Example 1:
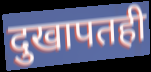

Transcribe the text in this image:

दुखापतही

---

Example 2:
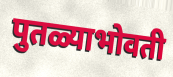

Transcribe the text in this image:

पुतळ्याभोवती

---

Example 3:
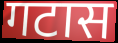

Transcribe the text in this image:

गटास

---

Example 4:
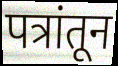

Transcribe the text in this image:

पत्रांतून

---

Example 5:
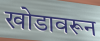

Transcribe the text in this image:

खोडावरून